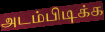
அடம்பிடிக்க